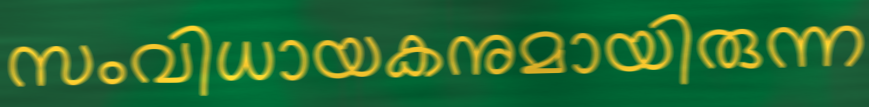
സംവിധായകനുമായിരുന്ന